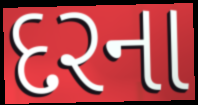
દરના